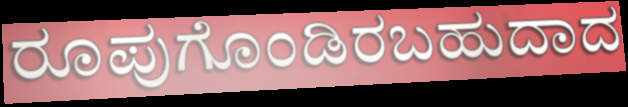
ರೂಪುಗೊಂಡಿರಬಹುದಾದ